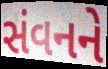
સંવનને